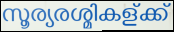
സൂര്യരശ്മികള്ക്ക്